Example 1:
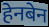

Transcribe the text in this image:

हेनबेन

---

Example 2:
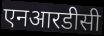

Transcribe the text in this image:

एनआरडीसी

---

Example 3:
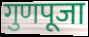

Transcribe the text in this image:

गुणपूजा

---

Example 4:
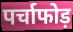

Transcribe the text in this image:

पर्चाफोड़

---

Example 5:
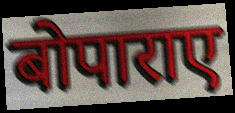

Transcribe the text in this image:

बोपाराए